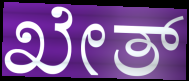
ಖೇತ್